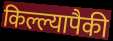
किल्ल्यापैकी